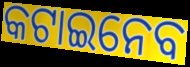
କଟାଇନେବ